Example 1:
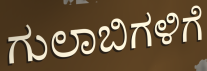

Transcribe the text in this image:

ಗುಲಾಬಿಗಳಿಗೆ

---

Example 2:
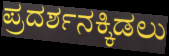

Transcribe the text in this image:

ಪ್ರದರ್ಶನಕ್ಕಿಡಲು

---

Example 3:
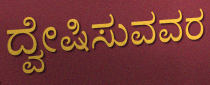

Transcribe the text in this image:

ದ್ವೇಷಿಸುವವರ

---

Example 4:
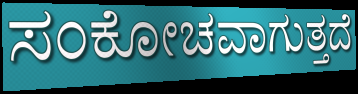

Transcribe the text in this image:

ಸಂಕೋಚವಾಗುತ್ತದೆ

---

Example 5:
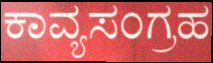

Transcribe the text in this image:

ಕಾವ್ಯಸಂಗ್ರಹ